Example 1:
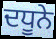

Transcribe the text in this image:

ਦਧੂਨੇ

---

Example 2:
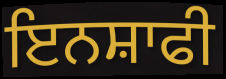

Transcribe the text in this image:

ਇਨਸ਼ਾਫੀ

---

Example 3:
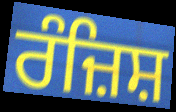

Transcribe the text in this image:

ਰੰਜ਼ਿਸ਼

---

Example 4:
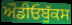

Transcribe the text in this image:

ਔਡੀਓਬੁੱਕਸ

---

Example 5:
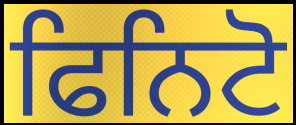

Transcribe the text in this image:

ਫਿਨਿਟੋ